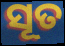
ସୂତ